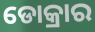
ଡୋକ୍ରାର